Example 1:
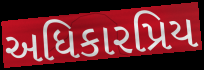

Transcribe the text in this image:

અધિકારપ્રિય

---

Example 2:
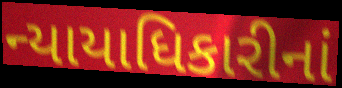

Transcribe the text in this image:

ન્યાયાધિકારીનાં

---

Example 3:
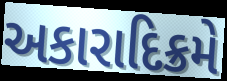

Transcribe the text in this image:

અકારાદિક્રમે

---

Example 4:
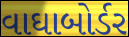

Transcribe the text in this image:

વાઘાબોર્ડર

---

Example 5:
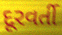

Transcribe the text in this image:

દૂરવર્તી